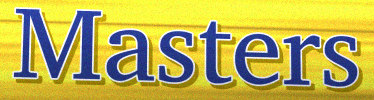
Masters